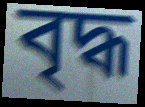
বৃদ্ধ